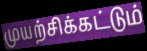
முயற்சிக்கட்டும்